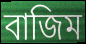
বাজিম